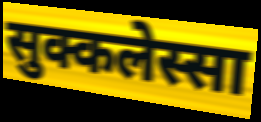
सुक्कलेस्सा